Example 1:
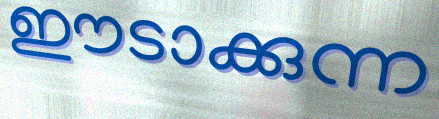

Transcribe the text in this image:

ഈടാക്കുന്ന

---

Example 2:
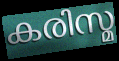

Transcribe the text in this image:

കരിസ്മ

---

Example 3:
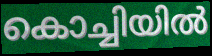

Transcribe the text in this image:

കൊച്ചിയിൽ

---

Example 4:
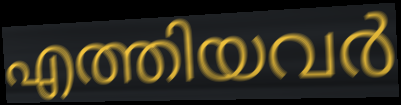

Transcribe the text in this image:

എത്തിയവർ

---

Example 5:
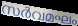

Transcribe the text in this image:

സർവമഘം